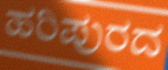
ಹರಿಪುರದ